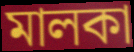
মালকা